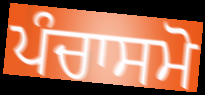
ਪੰਚਾਸਮੋ